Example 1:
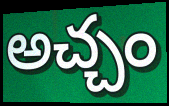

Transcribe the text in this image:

అచ్చం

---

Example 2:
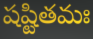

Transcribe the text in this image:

షష్టితమః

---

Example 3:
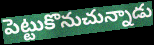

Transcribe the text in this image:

పెట్టుకొనుచున్నాడు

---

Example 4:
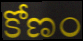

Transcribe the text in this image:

కోణం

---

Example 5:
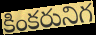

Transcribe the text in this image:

కింకరునిగ